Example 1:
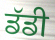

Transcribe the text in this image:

ਡੱਡੀ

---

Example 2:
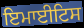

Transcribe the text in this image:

ਇਮਾਈਟਿਸ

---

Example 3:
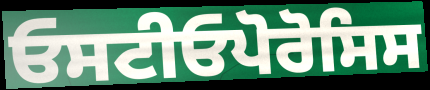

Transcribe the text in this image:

ਓਸਟੀਓਪੋਰੋਸਿਸ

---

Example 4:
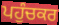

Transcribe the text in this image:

ਪਹੁੰਚਕਰ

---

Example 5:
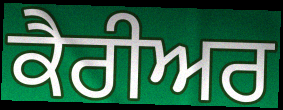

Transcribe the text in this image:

ਕੈਰੀਅਰ